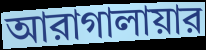
আরাগালায়ার